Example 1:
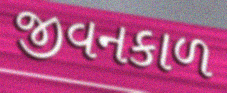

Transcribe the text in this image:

જીવનકાળ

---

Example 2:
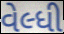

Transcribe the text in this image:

વેલ્ધી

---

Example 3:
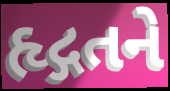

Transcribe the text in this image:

હૃદ્ગતને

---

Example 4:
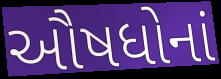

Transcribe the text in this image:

ઔષધોનાં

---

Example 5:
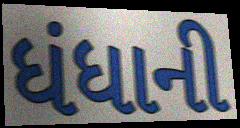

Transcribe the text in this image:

ધંધાની